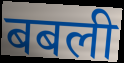
बबली